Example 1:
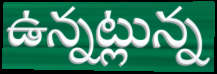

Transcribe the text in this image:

ఉన్నట్లున్న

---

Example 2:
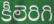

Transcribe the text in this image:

కీలెరిగి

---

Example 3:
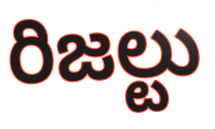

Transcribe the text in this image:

రిజల్టు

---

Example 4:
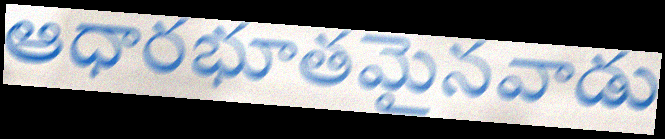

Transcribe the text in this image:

ఆధారభూతమైనవాడు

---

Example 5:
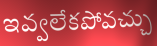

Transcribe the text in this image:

ఇవ్వలేకపోవచ్చు